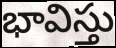
భావిస్తు